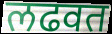
लढवत